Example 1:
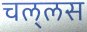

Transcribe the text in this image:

चल्लस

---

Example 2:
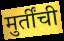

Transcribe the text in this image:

मुर्तींची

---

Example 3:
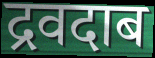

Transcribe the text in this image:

द्रवदाब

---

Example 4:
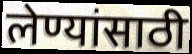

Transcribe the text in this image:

लेण्यांसाठी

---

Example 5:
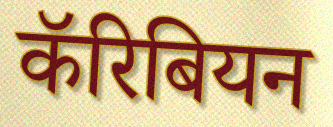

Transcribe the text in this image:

कॅरिबियन